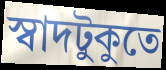
স্বাদটুকুতে